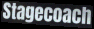
Stagecoach